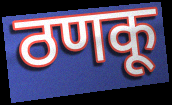
ठणकू